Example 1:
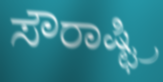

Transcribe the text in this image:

ಸೌರಾಷ್ಟ್ರಿ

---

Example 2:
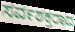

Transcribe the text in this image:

ಸರ್ವಶಕ್ತರಾದ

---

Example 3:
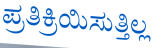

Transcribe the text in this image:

ಪ್ರತಿಕ್ರಿಯಿಸುತ್ತಿಲ್ಲ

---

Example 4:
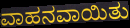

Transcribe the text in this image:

ವಾಹನವಾಯಿತು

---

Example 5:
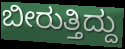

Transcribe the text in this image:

ಬೀರುತ್ತಿದ್ದು